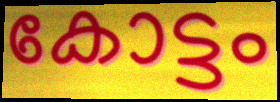
കോട്ടം